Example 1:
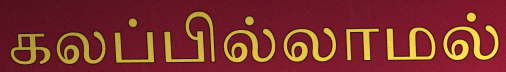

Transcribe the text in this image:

கலப்பில்லாமல்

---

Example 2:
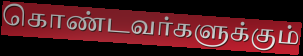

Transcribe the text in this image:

கொண்டவர்களுக்கும்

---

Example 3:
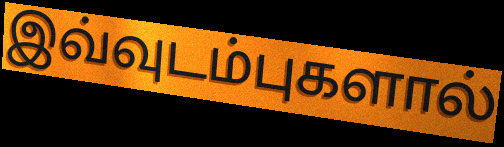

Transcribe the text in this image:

இவ்வுடம்புகளால்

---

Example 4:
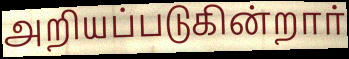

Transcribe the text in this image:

அறியப்படுகின்றார்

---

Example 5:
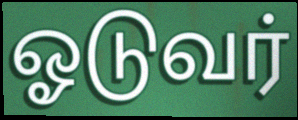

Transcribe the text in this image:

ஓடுவர்